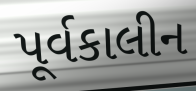
પૂર્વકાલીન